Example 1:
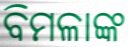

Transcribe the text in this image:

ବିମଳାଙ୍କ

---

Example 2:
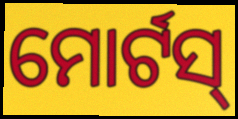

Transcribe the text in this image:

ମୋର୍ଟସ୍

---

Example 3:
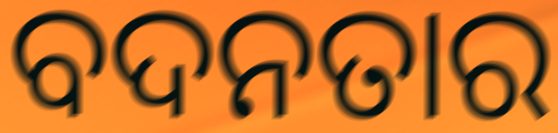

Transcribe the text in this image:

ବଦନତାର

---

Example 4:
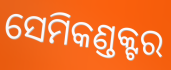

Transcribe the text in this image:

ସେମିକଣ୍ଡକ୍ଟର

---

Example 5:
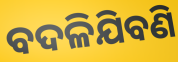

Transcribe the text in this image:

ବଦଳିଯିବଣି